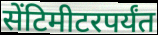
सेंटिमीटरपर्यंत